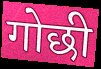
गोछी